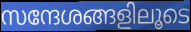
സന്ദേശങ്ങളിലൂടെ